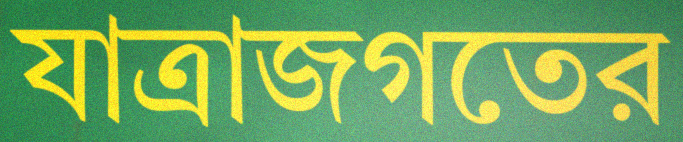
যাত্রাজগতের